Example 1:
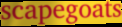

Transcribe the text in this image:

scapegoats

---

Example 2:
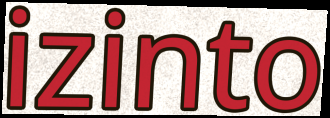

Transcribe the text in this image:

izinto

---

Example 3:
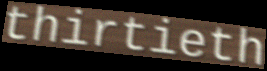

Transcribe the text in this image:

thirtieth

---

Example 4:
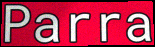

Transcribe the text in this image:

Parra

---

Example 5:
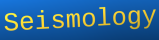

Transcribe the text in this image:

Seismology